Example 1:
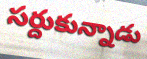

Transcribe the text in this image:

సర్దుకున్నాడు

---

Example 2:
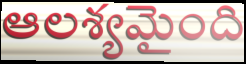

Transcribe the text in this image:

ఆలశ్యమైంది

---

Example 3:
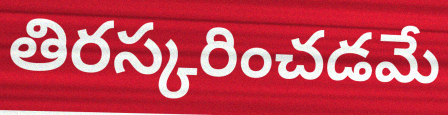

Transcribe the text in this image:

తిరస్కరించడమే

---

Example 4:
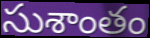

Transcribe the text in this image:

సుశాంతం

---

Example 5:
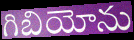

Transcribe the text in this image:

గిబియోను